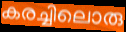
കരച്ചിലൊരു